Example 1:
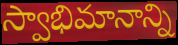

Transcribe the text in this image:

స్వాభిమానాన్ని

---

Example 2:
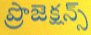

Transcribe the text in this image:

ప్రొజెక్షన్స్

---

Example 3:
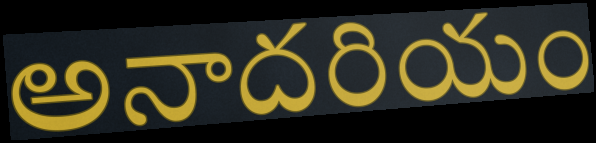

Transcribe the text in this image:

అనాదరియం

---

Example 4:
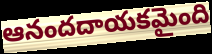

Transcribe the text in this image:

ఆనందదాయకమైంది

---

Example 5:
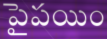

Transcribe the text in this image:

పైపయిం